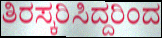
ತಿರಸ್ಕರಿಸಿದ್ದರಿಂದ